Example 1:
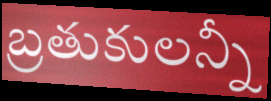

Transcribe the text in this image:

బ్రతుకులన్నీ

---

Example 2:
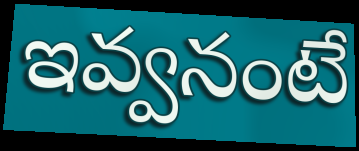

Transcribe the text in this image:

ఇవ్వనంటే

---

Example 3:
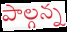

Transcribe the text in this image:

పాల్గన్న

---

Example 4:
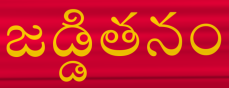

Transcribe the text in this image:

జడ్డితనం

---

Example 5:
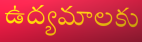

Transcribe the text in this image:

ఉద్యమాలకు